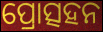
ପ୍ରୋତ୍ସହନ